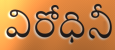
విరోధినీ